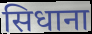
सिधाना